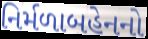
નિર્મળાબહેનનો